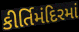
કીર્તિમંદિરમાં